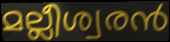
മല്ലീശ്വരൻ